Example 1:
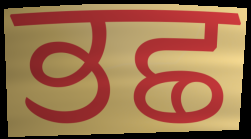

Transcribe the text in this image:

ਭਛ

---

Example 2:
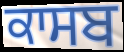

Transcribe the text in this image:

ਕਾਸਬ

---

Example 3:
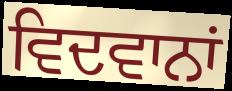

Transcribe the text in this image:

ਵਿਦਵਾਨਾਂ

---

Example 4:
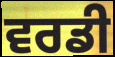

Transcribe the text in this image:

ਵਰਡੀ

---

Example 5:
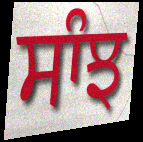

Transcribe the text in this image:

ਸਾੰਝ